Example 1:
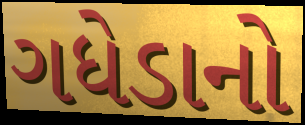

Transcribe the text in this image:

ગધેડાનો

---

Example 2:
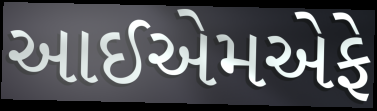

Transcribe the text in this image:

આઈએમએફે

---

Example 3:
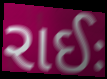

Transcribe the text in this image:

રાઈઃ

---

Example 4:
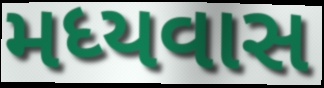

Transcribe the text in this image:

મધ્યવાસ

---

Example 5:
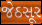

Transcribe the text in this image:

જેઠસૂર